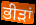
ਭੀੜਾਂ